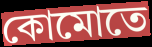
কোমোতে